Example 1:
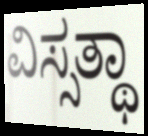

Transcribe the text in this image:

ವಿಸ್ಸತ್ಥಾ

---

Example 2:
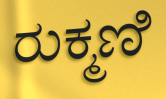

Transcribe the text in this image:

ರುಕ್ಮಣಿ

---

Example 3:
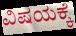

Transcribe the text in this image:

ವಿಷಯಕ್ಕೆ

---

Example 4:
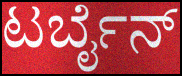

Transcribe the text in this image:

ಟರ್ಬೈನ್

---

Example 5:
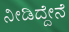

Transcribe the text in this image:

ನೀಡಿದ್ದೇನೆ